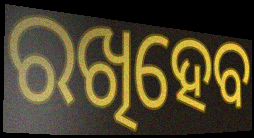
ରଖିହେବ